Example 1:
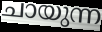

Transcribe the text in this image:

ചായുന്ന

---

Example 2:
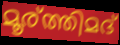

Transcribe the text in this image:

മൂര്ത്തിമദ്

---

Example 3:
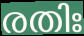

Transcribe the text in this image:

രതിഃ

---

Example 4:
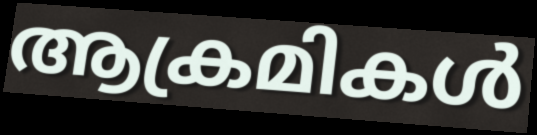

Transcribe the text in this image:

ആക്രമികൾ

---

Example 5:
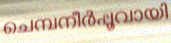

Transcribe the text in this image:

ചെമ്പനീർപ്പൂവായി